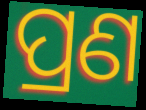
ପ୍ରଣ